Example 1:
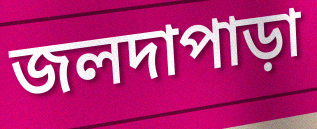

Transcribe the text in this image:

জলদাপাড়া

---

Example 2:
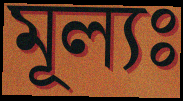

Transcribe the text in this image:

মূল্যঃ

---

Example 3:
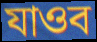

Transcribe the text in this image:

যাওব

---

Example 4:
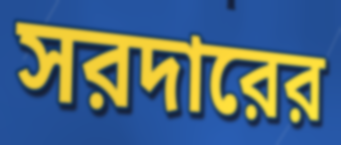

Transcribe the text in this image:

সরদারের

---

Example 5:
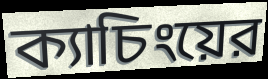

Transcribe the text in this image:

ক্যাচিংয়ের